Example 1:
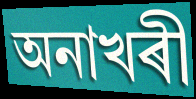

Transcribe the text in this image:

অনাখৰী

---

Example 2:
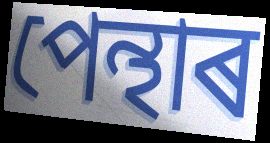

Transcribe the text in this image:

পেন্থাৰ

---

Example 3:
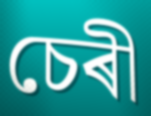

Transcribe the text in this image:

চেৰী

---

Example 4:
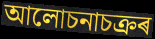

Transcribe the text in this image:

আলোচনাচক্ৰৰ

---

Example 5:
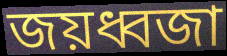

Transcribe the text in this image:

জয়ধ্বজা